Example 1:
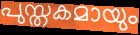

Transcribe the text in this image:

പുസ്തകമായും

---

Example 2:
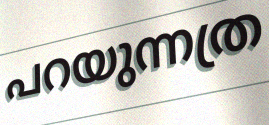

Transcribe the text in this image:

പറയുന്നത്ര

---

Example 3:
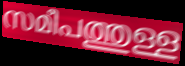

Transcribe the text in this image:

സമീപത്തുള്ള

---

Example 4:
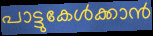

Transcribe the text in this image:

പാട്ടുകേൾക്കാൻ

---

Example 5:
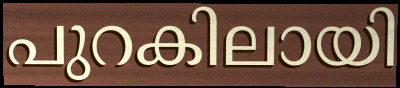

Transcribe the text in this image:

പുറകിലായി